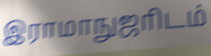
இராமாநுஜரிடம்